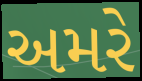
અમરે